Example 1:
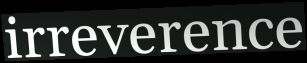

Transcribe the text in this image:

irreverence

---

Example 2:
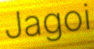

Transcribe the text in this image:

Jagoi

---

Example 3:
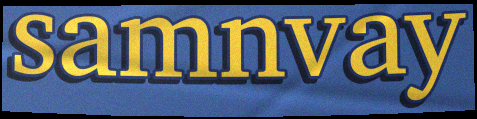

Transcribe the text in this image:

samnvay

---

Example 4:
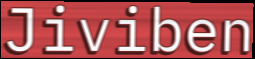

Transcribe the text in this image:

Jiviben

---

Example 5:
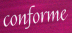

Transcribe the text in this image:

conforme